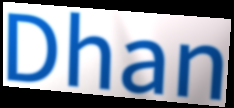
Dhan